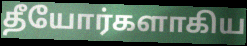
தீயோர்களாகிய